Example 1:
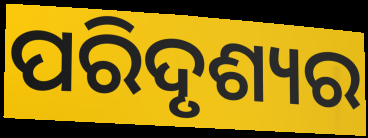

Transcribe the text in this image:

ପରିଦୃଶ୍ୟର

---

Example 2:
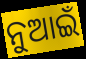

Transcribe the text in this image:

ନୁଆଇଁ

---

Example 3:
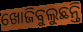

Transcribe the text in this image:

ଖୋଜିବୁଲୁଛନ୍ତି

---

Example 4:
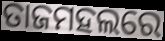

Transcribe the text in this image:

ତାଜମହଲରେ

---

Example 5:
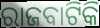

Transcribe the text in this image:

ରାଜବାଟିକି